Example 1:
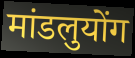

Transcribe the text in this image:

मांडलुयोंग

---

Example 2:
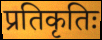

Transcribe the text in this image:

प्रतिकृतिः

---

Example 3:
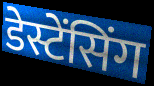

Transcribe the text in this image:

डेस्टेंसिंग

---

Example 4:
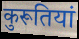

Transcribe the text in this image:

कुरूतियां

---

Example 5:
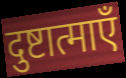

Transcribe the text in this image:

दुष्टात्माएँ